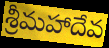
శ్రీమహాదేవ